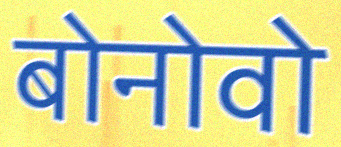
बोनोवो